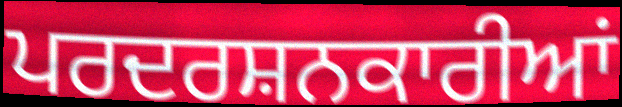
ਪਰਦਰਸ਼ਨਕਾਰੀਆਂ